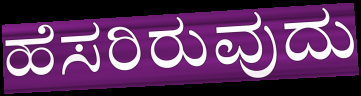
ಹೆಸರಿರುವುದು